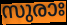
സുരാഃ